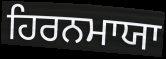
ਹਿਰਨਮਾਯਾ